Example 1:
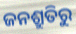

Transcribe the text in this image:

ଜନଶ୍ରୁତିରୁ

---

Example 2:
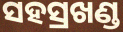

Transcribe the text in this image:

ସହସ୍ରଖଣ୍ଡ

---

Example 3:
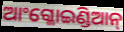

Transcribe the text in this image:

ଆଂଗ୍ଳୋଇଣ୍ଡିଆନ୍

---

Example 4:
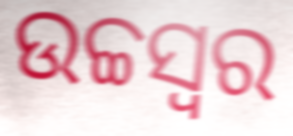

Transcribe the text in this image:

ଉଚ୍ଚସ୍ବର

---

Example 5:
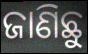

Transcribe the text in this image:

ଜାଣିଛୁ